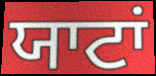
ਯਾਟਾਂ